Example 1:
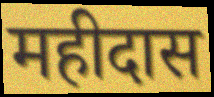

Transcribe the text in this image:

महीदास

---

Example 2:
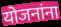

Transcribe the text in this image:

योजनांना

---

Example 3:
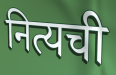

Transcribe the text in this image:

नित्यची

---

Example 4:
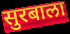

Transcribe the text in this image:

सुरबाला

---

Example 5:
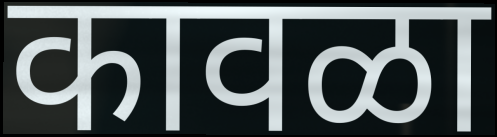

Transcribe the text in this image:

कावळा